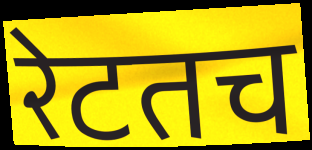
रेटतच